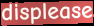
displease